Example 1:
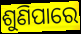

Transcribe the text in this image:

ଶୁଣିପାରେ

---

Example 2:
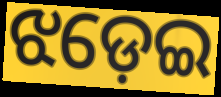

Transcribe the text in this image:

ଝଡ଼େଇ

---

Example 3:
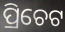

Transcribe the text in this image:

ପ୍ରିଚେଟ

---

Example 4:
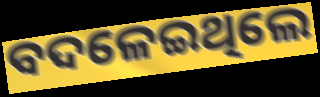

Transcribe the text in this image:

ବଦଳେଇଥିଲେ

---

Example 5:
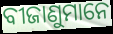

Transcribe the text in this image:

ବୀଜାଣୁମାନେ